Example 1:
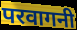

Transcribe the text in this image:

परवागनी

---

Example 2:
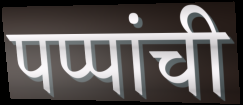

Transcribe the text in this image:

पप्पांची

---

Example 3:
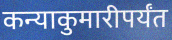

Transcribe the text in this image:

कन्याकुमारीपर्यंत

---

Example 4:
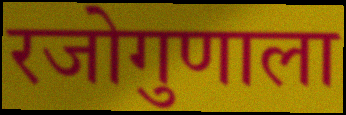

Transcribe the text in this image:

रजोगुणाला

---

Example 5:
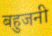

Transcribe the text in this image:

बहुजनी